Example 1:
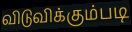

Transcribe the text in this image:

விடுவிக்கும்படி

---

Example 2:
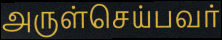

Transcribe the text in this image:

அருள்செய்பவர்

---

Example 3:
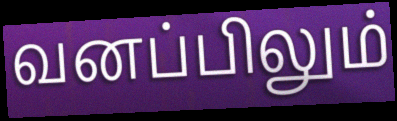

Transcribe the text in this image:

வனப்பிலும்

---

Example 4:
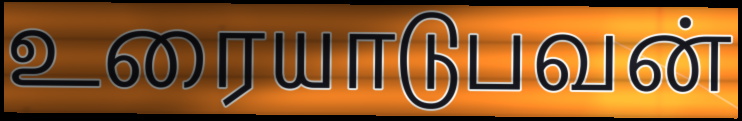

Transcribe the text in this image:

உரையாடுபவன்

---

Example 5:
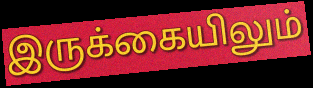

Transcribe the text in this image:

இருக்கையிலும்